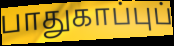
பாதுகாப்புப்